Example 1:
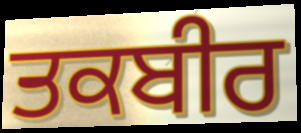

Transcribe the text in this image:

ਤਕਬੀਰ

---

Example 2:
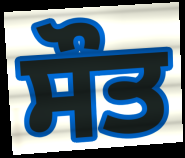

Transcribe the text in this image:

ਸੌਤ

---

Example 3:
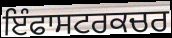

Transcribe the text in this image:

ਇੰਫਾਸਟਰਕਚਰ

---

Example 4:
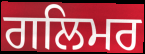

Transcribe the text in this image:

ਗਲਿਮਰ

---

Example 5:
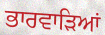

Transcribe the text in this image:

ਭਾਰਵਾੜਿਆਂ